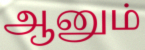
ஆனும்